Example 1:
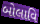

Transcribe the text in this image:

બોલાવિ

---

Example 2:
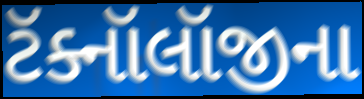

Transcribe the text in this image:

ટૅક્નૉલૉજીના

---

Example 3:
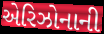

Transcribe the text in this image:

એરિઝોનાની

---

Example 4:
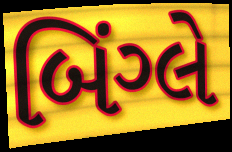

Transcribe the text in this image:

બિંગ્લે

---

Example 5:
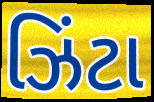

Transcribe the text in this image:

ઝિંટા